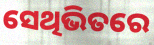
ସେଥିଭିତରେ